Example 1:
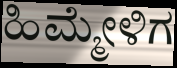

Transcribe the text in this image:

ಹಿಮ್ಮೇಳಿಗ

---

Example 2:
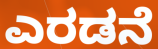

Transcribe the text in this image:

ಎರಡನೆ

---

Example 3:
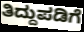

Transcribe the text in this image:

ತಿದ್ದುಪಡಿಗೆ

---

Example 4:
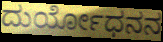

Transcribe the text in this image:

ದುರ್ಯೋಧನನ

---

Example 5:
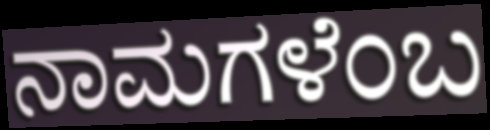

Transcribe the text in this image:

ನಾಮಗಳೆಂಬ